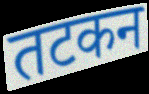
तटकन